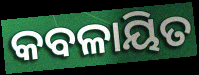
କବଳାୟିତ